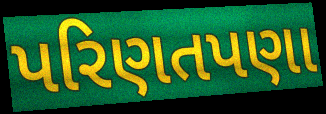
પરિણતપણા